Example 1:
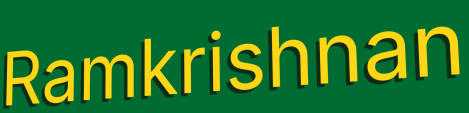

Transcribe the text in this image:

Ramkrishnan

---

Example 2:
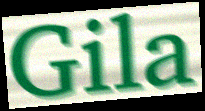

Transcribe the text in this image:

Gila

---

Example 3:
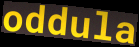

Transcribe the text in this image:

oddula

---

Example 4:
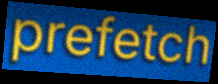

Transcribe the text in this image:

prefetch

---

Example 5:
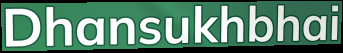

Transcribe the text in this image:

Dhansukhbhai